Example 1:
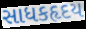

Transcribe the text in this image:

સાધકહૃદય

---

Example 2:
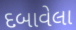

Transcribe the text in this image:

દબાવેલા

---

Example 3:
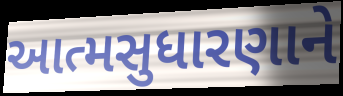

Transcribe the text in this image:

આત્મસુધારણાને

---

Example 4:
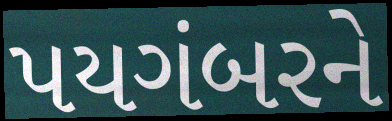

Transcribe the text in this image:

પયગંબરને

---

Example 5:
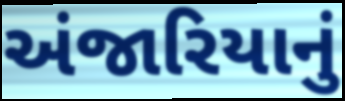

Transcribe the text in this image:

અંજારિયાનું